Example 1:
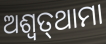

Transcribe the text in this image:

ଅଶ୍ବତ୍‌ଥାମା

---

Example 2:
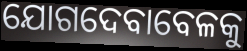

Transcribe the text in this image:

ଯୋଗଦେବାବେଳକୁ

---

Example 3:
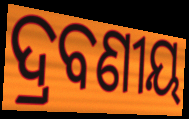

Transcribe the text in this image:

ଦ୍ରବଣୀୟ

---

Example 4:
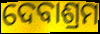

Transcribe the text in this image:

ଦେବାଶ୍ରମ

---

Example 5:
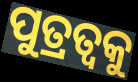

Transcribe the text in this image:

ପୁତ୍ରତ୍ଵକୁ